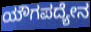
ಯೌಗಪದ್ಯೇನ